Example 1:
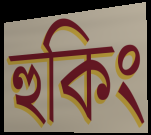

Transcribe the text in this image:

হুকিং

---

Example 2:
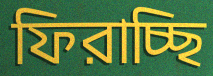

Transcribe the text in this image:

ফিরাচ্ছি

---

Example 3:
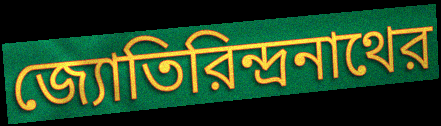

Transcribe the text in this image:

জ্যোতিরিন্দ্রনাথের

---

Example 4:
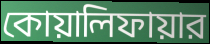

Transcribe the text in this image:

কোয়ালিফায়ার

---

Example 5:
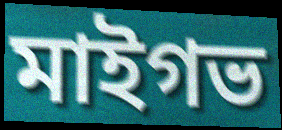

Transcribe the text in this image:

মাইগভ